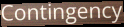
Contingency